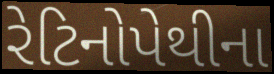
રેટિનોપેથીના